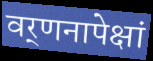
वर्णनापेक्षां